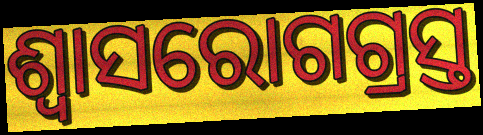
ଶ୍ୱାସରୋଗଗ୍ରସ୍ତ